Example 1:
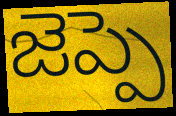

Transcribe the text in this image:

జెప్పె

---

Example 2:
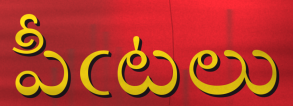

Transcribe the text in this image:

పీఁటలు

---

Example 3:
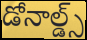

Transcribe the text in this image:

డోనాల్డ్స్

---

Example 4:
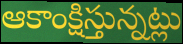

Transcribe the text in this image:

ఆకాంక్షిస్తున్నట్లు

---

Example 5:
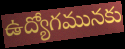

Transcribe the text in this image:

ఉద్యోగమునకు